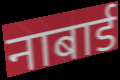
नाबार्ड